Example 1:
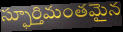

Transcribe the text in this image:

స్ఫూర్తిమంతమైన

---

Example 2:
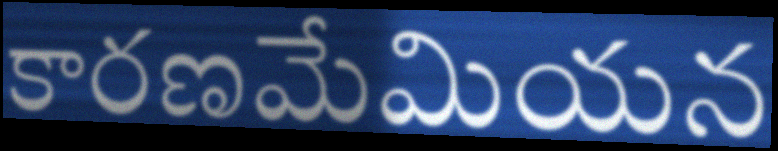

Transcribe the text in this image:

కారణమేమియన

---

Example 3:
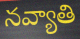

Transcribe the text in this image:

నవ్యాతి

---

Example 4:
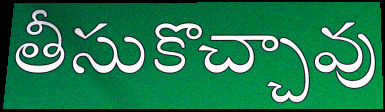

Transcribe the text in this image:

తీసుకొచ్చావు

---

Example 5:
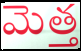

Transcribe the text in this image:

మెత్త